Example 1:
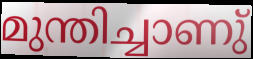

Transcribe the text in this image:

മുന്തിച്ചാണു്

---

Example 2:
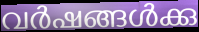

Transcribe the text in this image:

വർഷങ്ങൾക്കു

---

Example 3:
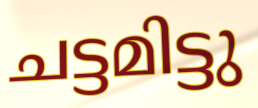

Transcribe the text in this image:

ചട്ടമിട്ടു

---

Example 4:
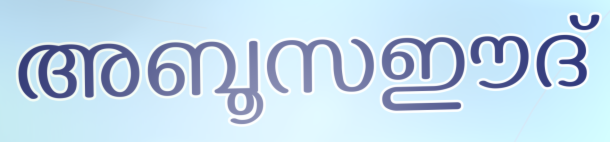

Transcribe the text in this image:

അബൂസഈദ്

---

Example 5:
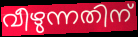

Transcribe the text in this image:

വീഴുന്നതിന്